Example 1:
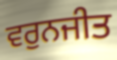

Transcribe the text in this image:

ਵਰੁਨਜੀਤ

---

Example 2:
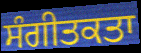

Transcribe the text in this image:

ਸੰਗੀਤਕਤਾ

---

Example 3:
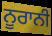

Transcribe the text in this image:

ਨੂਰਾਨੀ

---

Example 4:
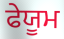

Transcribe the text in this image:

ਫੇਯੂਮ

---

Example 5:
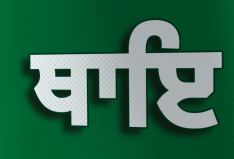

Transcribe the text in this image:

ਥਾਇ